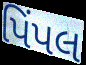
પિંપલ